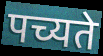
पच्यते